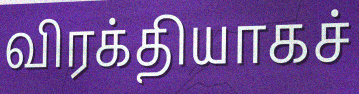
விரக்தியாகச்